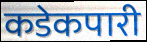
कडेकपारी